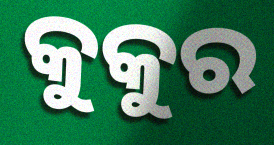
କୁକୁର